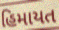
હિમાયત